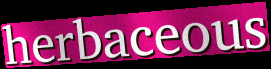
herbaceous